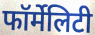
फॉर्मेलिटी